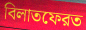
বিলাতফেরত